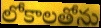
లోకాలతోను